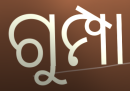
ଗୁମ୍ପା